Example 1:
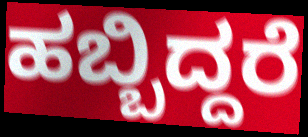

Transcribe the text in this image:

ಹಬ್ಬಿದ್ದರೆ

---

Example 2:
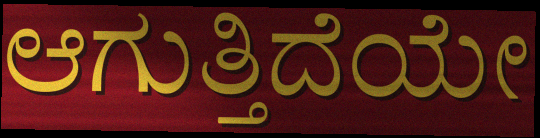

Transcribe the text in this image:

ಆಗುತ್ತಿದೆಯೇ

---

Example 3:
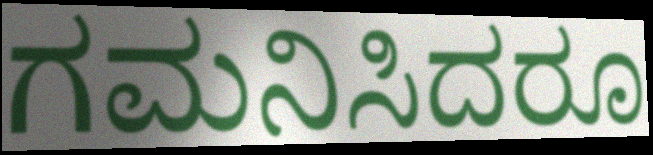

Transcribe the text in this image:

ಗಮನಿಸಿದರೂ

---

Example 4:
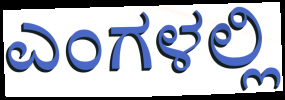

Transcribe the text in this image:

ಎಂಗಳಲ್ಲಿ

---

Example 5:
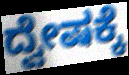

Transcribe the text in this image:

ದ್ವೇಷಕ್ಕೆ